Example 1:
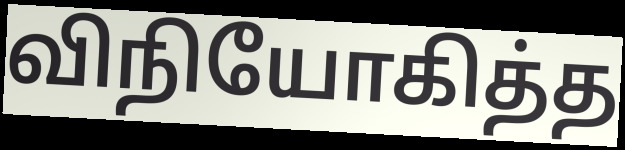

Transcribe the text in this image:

விநியோகித்த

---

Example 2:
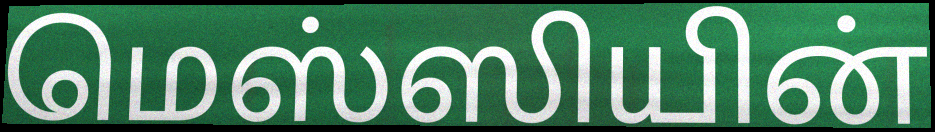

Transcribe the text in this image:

மெஸ்ஸியின்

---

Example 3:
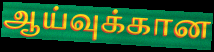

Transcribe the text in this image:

ஆய்வுக்கான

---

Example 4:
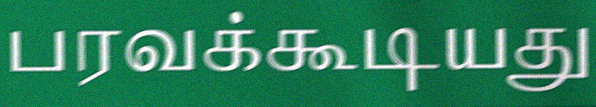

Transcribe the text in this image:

பரவக்கூடியது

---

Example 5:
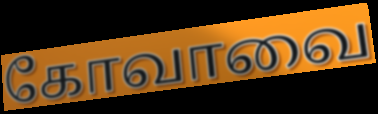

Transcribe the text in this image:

கோவாவை